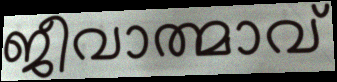
ജീവാത്മാവ്